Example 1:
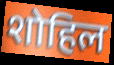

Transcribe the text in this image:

शोहिल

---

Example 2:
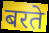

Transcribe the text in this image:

बरते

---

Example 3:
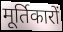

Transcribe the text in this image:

मूर्तिकारों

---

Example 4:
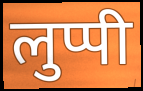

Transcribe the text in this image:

लुप्पी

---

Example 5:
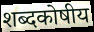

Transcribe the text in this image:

शब्दकोषीय